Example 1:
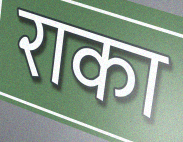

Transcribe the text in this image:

राका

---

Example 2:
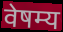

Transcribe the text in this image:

वेषम्य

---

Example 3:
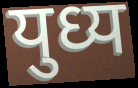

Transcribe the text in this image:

युध्य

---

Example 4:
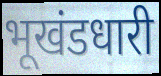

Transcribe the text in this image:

भूखंडधारी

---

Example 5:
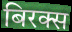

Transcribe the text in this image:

बिरक्स